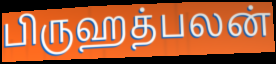
பிருஹத்பலன்